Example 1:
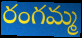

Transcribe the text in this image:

రంగమ్మ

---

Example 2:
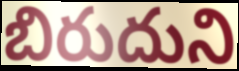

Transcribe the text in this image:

బిరుదుని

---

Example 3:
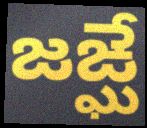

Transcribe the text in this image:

జఙ్ఘే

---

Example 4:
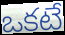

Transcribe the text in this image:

ఒకటే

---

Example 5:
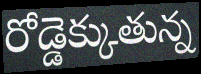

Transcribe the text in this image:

రోడ్డెక్కుతున్న